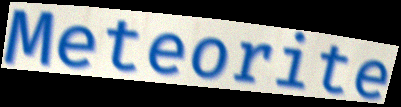
Meteorite